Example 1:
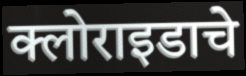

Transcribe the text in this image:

क्लोराइडाचे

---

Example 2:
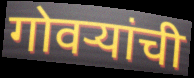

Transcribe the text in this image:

गोवऱ्यांची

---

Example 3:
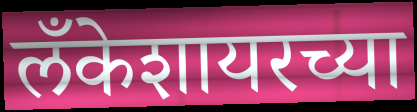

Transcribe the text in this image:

लँकेशायरच्या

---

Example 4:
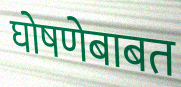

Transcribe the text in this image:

घोषणेबाबत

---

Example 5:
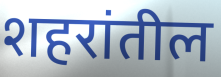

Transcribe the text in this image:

शहरांतील